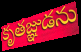
కృతజ్ఞుడను